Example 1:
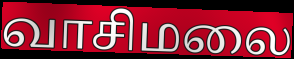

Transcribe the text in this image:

வாசிமலை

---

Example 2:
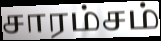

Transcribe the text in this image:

சாரம்சம்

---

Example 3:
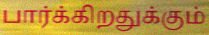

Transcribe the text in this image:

பார்க்கிறதுக்கும்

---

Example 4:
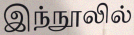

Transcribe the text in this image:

இந்நூலில்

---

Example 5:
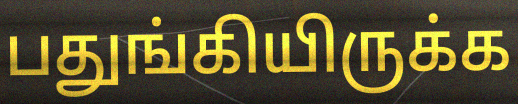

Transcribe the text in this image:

பதுங்கியிருக்க